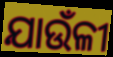
ଯାଉଁଳୀ